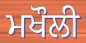
ਮਖੌਲੀ